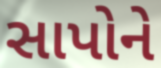
સાપોને